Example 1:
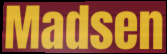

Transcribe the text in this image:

Madsen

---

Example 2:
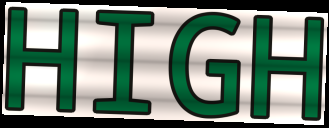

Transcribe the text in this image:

HIGH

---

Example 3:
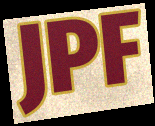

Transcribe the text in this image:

JPF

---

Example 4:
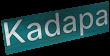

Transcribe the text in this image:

Kadapa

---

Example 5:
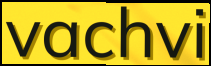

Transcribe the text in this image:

vachvi